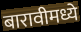
बारावीमध्ये